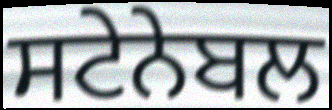
ਸਟੇਨੇਬਲ